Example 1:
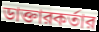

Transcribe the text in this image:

ডাক্তারকর্তার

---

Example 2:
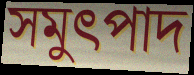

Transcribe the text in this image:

সমুৎপাদ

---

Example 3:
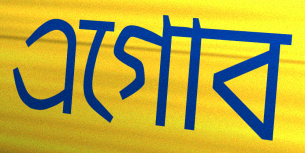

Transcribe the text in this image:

এগোব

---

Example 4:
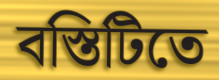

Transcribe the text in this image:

বস্তিটিতে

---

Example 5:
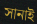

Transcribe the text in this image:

সানাই